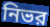
নিভর